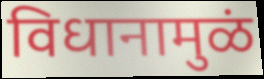
विधानामुळं